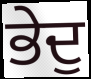
ਭੇਦੁ